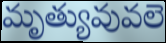
మృత్యువువలె